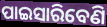
ପାଇସାରିବେଣି